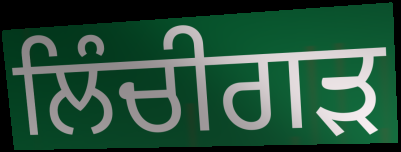
ਲਿੰਚੀਗੜ